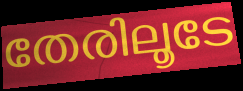
തേരിലൂടേ